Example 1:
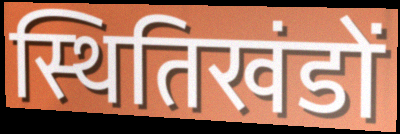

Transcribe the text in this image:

स्थितिखंडों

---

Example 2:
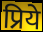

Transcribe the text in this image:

प्रिये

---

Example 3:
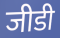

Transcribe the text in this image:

जीडी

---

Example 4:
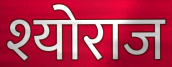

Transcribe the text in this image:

श्योराज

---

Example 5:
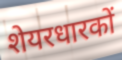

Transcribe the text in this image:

शेयरधारकों